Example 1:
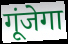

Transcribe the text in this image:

गूंजेगा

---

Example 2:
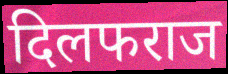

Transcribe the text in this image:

दिलफराज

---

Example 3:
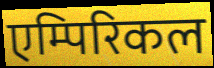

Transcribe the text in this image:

एम्पिरिकल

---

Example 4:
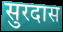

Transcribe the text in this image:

सुरदास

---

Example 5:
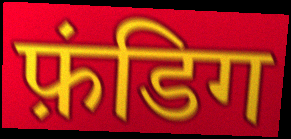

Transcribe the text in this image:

फ़ंडिग